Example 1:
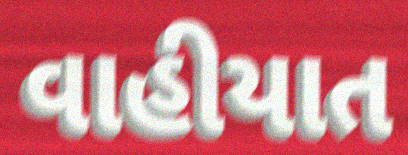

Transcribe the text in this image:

વાહીયાત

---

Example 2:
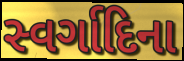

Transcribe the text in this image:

સ્વર્ગાદિના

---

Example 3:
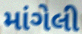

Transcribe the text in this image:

માંગેલી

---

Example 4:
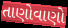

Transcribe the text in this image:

તાણોવાણો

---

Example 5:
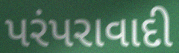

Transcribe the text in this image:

પરંપરાવાદી